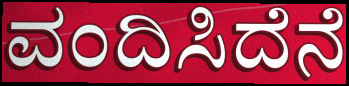
ವಂದಿಸಿದೆನೆ